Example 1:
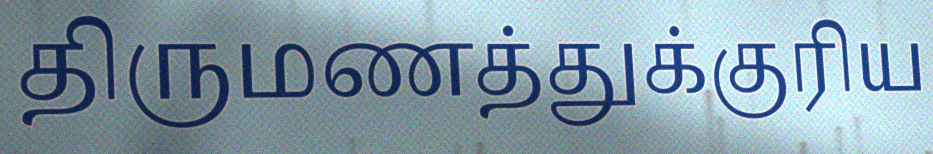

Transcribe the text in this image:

திருமணத்துக்குரிய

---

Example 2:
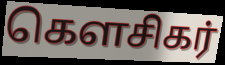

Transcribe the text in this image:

கௌசிகர்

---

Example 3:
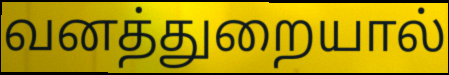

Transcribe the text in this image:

வனத்துறையால்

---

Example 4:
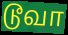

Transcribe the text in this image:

டூவா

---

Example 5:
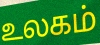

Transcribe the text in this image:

உலகம்